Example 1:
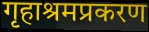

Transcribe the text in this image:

गृहाश्रमप्रकरण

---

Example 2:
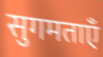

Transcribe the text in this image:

सुगमताएँ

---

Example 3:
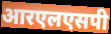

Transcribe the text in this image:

आरएलएसपी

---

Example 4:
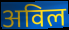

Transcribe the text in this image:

अविल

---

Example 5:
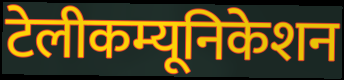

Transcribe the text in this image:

टेलीकम्यूनिकेशन